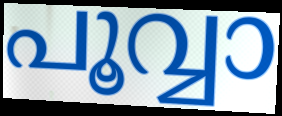
പൂവ്വാ